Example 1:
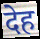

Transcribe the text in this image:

देह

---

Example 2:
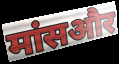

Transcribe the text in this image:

मांसऔर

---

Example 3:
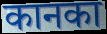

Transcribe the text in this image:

कानका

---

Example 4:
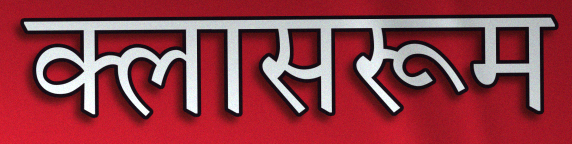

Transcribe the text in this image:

क्लासरूम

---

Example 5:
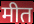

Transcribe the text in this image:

मीत